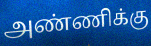
அண்ணிக்கு